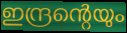
ഇന്ദ്രന്റെയും